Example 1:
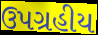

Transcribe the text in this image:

ઉપગ્રહીય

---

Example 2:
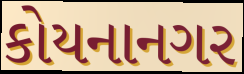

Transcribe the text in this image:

કોયનાનગર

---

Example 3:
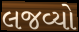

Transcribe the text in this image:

લજવ્યો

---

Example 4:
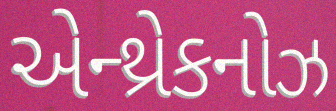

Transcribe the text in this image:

એન્થ્રેકનોઝ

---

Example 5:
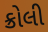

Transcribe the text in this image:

ક્રોલી